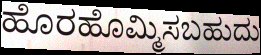
ಹೊರಹೊಮ್ಮಿಸಬಹುದು